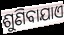
ଶୁଣିବାଯାଏ